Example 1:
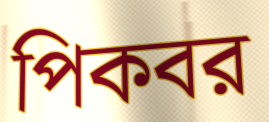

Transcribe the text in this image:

পিকবর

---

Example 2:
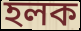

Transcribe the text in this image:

হলক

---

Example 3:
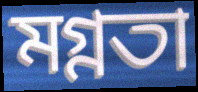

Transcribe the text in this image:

মগ্নতা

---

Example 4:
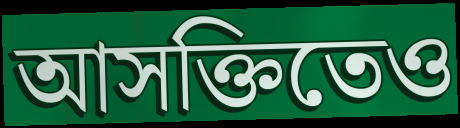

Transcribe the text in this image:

আসক্তিতেও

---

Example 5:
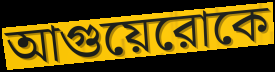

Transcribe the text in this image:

আগুয়েরোকে